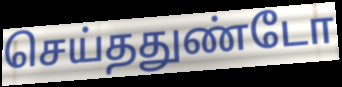
செய்ததுண்டோ